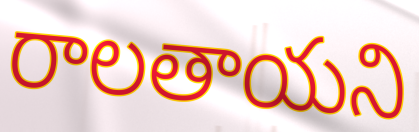
రాలతాయని